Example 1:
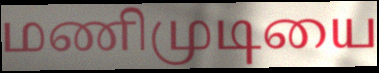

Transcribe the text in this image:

மணிமுடியை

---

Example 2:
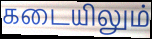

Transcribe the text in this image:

கடையிலும்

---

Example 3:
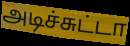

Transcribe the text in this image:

அடிச்சுட்டா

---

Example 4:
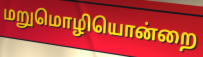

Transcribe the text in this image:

மறுமொழியொன்றை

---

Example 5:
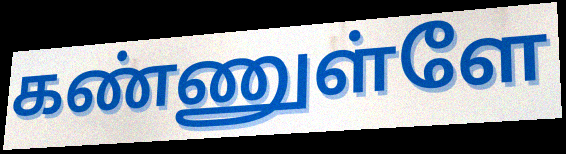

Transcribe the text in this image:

கண்ணுள்ளே